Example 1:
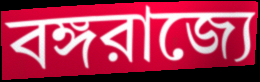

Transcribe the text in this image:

বঙ্গরাজ্যে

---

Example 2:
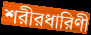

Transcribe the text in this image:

শরীরধারিণী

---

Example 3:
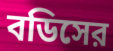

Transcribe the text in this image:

বডিসের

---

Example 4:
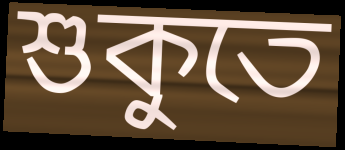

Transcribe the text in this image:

শুকুতে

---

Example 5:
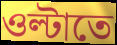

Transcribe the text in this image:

ওল্টাতে